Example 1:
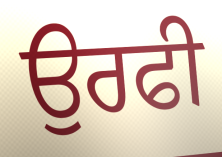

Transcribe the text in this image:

ਉਰਫੀ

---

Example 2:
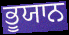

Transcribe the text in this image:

ਭੂਯਾਨ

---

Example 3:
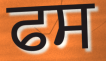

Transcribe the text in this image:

ਫਸ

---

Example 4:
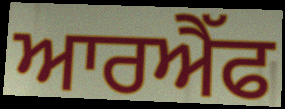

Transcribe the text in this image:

ਆਰਐੱਫ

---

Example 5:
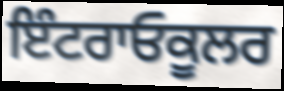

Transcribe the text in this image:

ਇੰਟਰਾਓਕੂਲਰ